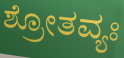
ಶ್ರೋತವ್ಯಃ